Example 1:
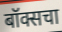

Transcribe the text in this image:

बॉक्सचा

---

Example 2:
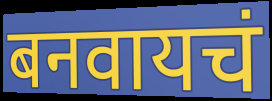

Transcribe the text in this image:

बनवायचं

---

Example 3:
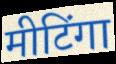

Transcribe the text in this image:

मीटिंगा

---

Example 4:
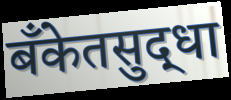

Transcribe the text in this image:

बँकेतसुद्धा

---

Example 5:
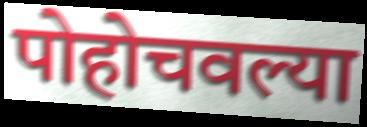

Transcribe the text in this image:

पोहोचवल्या